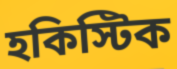
হকিস্টিক